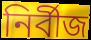
নির্বীজ